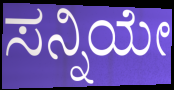
ಸನ್ನಿಯೇ